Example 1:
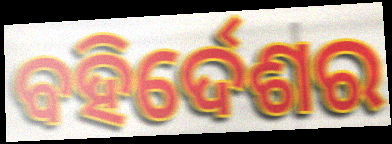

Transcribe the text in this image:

ବହିର୍ଦେଶର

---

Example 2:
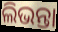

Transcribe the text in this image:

ଲିଭନ୍ତା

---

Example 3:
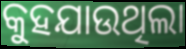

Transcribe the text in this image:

କୁହଯାଉଥିଲା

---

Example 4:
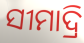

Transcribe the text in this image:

ସୀମାଦ୍ରି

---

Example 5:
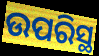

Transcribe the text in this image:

ଉପରିସ୍ଥ